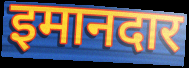
इमानदार